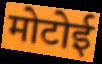
मोटोई